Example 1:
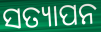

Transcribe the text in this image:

ସତ୍ୟାପନ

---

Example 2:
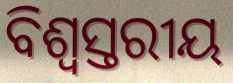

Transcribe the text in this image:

ବିଶ୍ଵସ୍ତରୀୟ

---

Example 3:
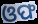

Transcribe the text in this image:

ଓଫ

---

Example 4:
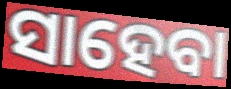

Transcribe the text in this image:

ସାହେବା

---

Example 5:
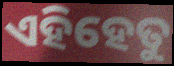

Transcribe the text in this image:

ଏହିହେତୁ